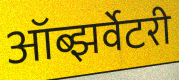
ऑब्झर्वेटरी